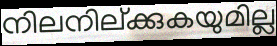
നിലനില്ക്കുകയുമില്ല